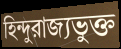
হিন্দুরাজ্যভুক্ত